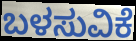
ಬಳಸುವಿಕೆ